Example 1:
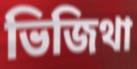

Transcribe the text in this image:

ভিজিথা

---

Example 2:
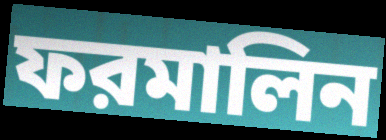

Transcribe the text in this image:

ফরমালিন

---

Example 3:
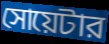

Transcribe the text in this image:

সোয়েটার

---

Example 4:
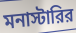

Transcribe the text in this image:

মনাস্টারির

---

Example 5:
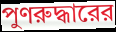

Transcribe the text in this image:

পুণরুদ্ধারের